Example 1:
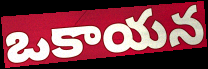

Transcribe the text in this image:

ఒకాయన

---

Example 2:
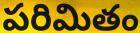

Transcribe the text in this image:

పరిమితం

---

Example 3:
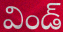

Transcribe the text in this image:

విండ్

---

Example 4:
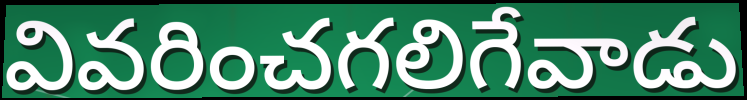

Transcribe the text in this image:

వివరించగలిగేవాడు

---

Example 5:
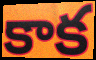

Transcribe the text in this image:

కాక